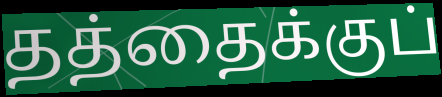
தத்தைக்குப்